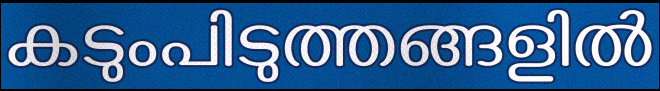
കടുംപിടുത്തങ്ങളിൽ